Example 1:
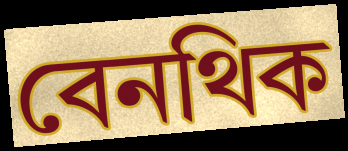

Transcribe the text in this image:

বেনথিক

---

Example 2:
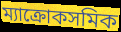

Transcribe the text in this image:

ম্যাক্রোকসমিক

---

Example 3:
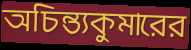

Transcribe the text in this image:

অচিন্ত্যকুমারের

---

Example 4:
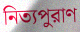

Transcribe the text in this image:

নিত্যপুরাণ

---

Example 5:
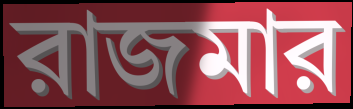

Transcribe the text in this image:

রাজমার